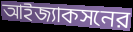
আইজ্যাকসনের